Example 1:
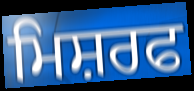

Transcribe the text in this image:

ਮਿਸ਼ਰਫ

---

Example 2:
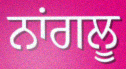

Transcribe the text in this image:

ਨਾਂਗਲੂ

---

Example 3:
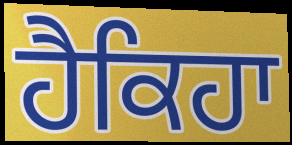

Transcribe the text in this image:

ਹੈਕਿਹਾ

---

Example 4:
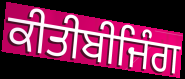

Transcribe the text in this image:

ਕੀਤੀਬੀਜਿੰਗ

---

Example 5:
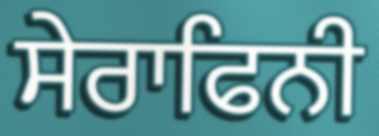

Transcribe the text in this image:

ਸੇਰਾਫਿਨੀ